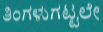
ತಿಂಗಳುಗಟ್ಟಲೇ